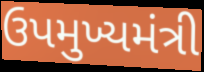
ઉપમુખ્યમંત્રી